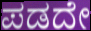
ಪಡದೇ